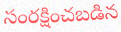
సంరక్షించబడిన